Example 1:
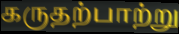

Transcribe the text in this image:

கருதற்பாற்று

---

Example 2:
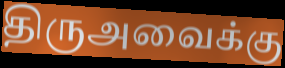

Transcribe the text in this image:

திருஅவைக்கு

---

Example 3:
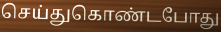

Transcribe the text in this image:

செய்துகொண்டபோது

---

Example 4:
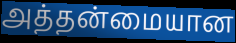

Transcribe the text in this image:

அத்தன்மையான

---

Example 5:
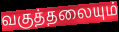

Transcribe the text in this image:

வகுத்தலையும்